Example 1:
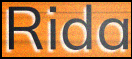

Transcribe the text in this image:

Rida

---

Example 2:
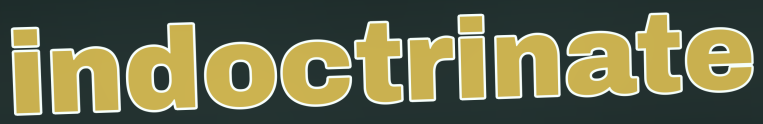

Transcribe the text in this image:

indoctrinate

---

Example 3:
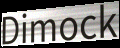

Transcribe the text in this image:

Dimock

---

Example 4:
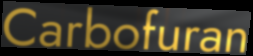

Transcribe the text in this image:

Carbofuran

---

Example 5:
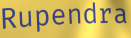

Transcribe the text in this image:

Rupendra